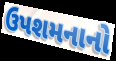
ઉપશમનાનો